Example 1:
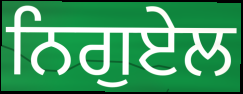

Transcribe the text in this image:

ਨਿਗੁਏਲ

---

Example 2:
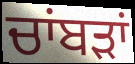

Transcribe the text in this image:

ਚਾਂਬੜਾਂ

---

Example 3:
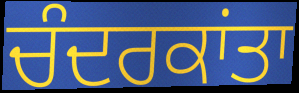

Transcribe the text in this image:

ਚੰਦਰਕਾਂਤਾ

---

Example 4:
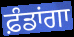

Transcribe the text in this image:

ਫ਼ੰਡਾਂਗਾ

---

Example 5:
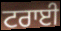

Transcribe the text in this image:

ਟਰਾਈ